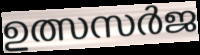
ഉത്സസർജ